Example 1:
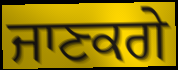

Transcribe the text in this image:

ਜਾਣਕਗੇ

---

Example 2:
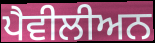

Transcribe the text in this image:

ਪੈਵੀਲੀਅਨ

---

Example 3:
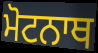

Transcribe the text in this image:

ਮੋਟਨਾਥ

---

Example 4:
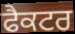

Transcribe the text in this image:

ਫੈਕਟਰ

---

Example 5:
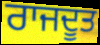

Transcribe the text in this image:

ਰਾਜਦੂਤ